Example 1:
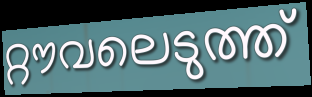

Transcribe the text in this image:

റ്റൗവലെടുത്ത്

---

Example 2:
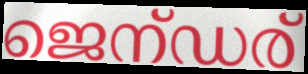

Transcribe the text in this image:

ജെന്ഡര്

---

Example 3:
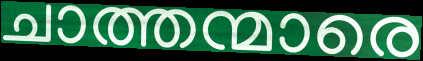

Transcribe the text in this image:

ചാത്തന്മാരെ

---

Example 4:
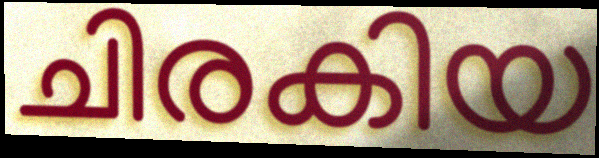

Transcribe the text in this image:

ചിരകിയ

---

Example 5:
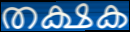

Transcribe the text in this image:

തക്ഷക